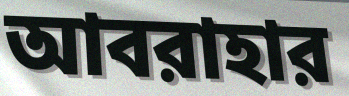
আবরাহার